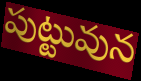
పుట్టువున